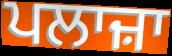
ਪਲਾਜ਼ਾ